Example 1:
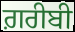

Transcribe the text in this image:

ਗ਼ਰੀਬੀ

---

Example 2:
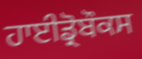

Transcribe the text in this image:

ਹਾਈਡ੍ਰੋਬੌਕਸ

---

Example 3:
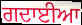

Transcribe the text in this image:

ਗਦਾਈਆ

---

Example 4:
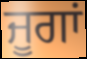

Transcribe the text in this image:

ਜੂਗਾਂ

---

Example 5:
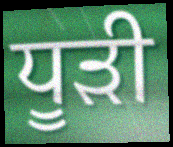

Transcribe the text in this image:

ਧੂੜੀ